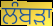
ਲੰਬੜਾ